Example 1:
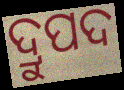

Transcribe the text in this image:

ଦ୍ରୁପଦ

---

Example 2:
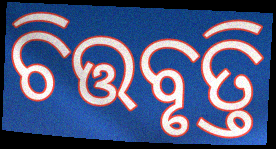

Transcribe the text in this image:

ଚିତ୍ତବୃତ୍ତି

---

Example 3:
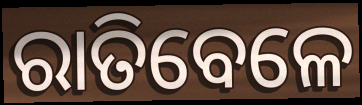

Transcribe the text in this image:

ରାତିବେଳେ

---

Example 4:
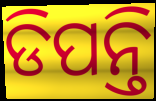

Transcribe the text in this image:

ଡିପନ୍ତି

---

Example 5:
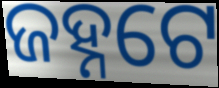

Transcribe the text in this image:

ଜହ୍ନଟେ